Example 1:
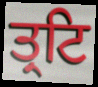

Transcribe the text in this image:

ਤ੍ਰਟਿ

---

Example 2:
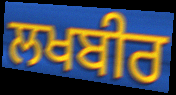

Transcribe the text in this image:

ਲਖਬੀਰ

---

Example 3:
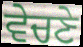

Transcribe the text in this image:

ਵੇਚਣੇ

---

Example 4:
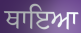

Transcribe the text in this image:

ਥਾਇਆ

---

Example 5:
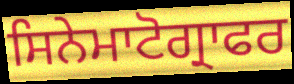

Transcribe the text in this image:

ਸਿਨੇਮਾਟੋਗ੍ਰਾਫਰ